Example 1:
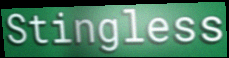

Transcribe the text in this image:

Stingless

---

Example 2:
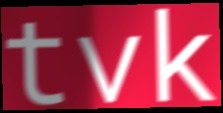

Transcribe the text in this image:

tvk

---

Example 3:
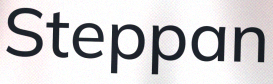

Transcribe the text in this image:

Steppan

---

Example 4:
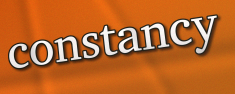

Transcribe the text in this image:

constancy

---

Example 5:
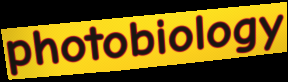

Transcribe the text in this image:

photobiology